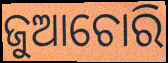
ଜୁଆଚୋରି